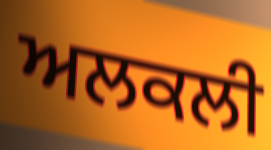
ਅਲਕਲੀ